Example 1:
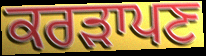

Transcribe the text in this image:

ਕਰੜਾਪਣ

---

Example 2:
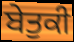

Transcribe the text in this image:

ਬੇਤੁਕੀ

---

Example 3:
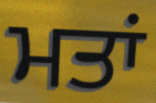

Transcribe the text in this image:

ਮਤਾਂ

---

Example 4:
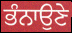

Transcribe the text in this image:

ਭੰਨਾਉਣੇ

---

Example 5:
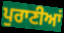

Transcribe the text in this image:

ਪੁਰਾਣੀਆਂ